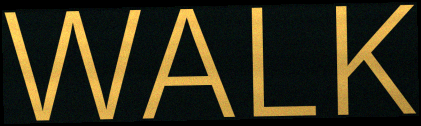
WALK